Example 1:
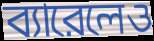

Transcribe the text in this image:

ব্যারেলেও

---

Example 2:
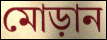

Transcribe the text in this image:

মোড়ান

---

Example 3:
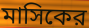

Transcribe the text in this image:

মাসিকের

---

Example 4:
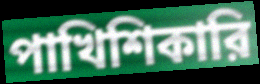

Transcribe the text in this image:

পাখিশিকারি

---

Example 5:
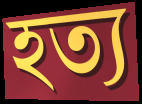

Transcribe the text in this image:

হত্য